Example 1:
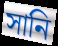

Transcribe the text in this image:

সানি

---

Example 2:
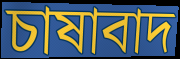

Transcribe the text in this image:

চাষাবাদ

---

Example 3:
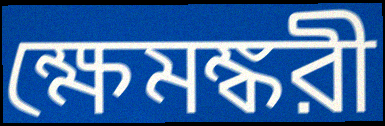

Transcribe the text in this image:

ক্ষেমঙ্করী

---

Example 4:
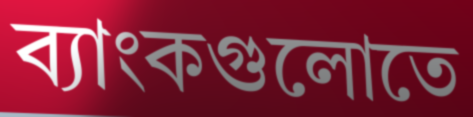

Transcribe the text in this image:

ব্যাংকগুলোতে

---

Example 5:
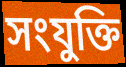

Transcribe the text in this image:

সংযুক্তি